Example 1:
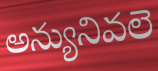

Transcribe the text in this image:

అన్యునివలె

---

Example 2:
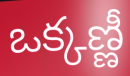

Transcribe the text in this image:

ఒక్కణ్ణీ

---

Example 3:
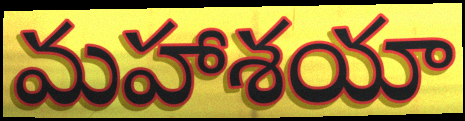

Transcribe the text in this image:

మహాశయా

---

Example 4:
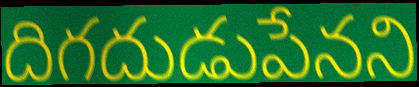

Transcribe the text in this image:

దిగదుడుపేనని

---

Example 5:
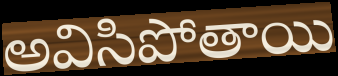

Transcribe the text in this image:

అవిసిపోతాయి